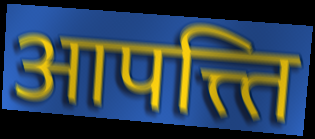
आपत्त्ति